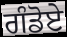
ਗੰਡੋਏ